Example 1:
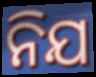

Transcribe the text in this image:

ନିଯ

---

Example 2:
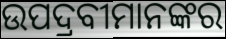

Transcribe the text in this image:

ଉପଦ୍ରବୀମାନଙ୍କର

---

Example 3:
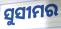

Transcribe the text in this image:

ସୁସୀମର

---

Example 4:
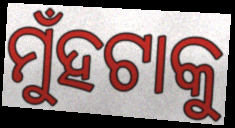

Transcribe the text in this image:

ମୁଁହଟାକୁ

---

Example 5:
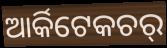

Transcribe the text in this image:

ଆର୍କିଟେକଚର୍